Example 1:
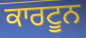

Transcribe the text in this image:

ਕਾਰਟੂਨ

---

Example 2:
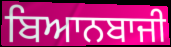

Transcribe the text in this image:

ਬਿਆਨਬਾਜੀ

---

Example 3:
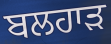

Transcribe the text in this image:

ਬਲਹਾੜ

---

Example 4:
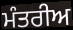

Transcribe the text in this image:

ਮੰਤਰੀਅ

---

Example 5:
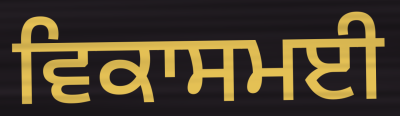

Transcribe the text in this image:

ਵਿਕਾਸਮਈ